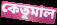
কেতুমাল